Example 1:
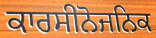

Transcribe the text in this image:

ਕਾਰਸੀਨੋਜਨਿਕ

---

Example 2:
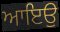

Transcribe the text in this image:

ਆਇਉ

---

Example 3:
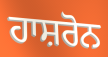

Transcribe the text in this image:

ਹਾਸ਼ਰੋਨ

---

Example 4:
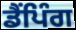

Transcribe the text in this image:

ਡੈਂਪਿੰਗ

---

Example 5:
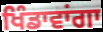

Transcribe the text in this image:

ਖਿੰਡਾਵਾਂਗਾ